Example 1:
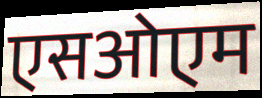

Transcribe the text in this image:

एसओएम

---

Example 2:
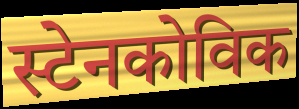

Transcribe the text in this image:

स्टेनकोविक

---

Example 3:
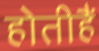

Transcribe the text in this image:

होतीहैं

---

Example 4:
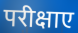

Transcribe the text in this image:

परीक्षाए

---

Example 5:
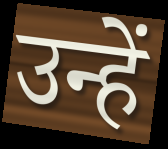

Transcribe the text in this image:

उन्हें